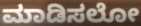
ಮಾಡಿಸಲೋ